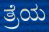
ತ್ರೆಯ